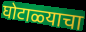
घोटाळ्याचा